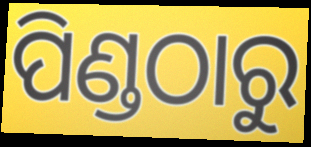
ପିଣ୍ଡଠାରୁ